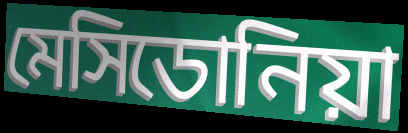
মেসিডোনিয়া